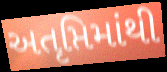
અતૃપ્તિમાંથી